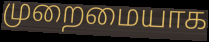
முறைமையாக